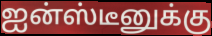
ஐன்ஸ்டீனுக்கு